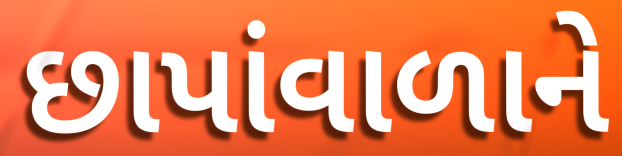
છાપાંવાળાને